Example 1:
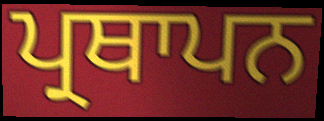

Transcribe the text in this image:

ਪ੍ਰਥਾਪਨ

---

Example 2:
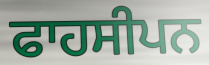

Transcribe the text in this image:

ਫਾਹਸੀਪਨ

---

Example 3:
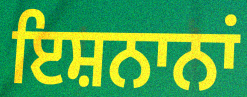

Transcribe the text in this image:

ਇਸ਼ਨਾਨਾਂ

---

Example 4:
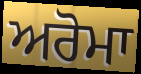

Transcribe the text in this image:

ਅਰੋਮਾ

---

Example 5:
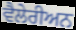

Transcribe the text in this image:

ਵੈਲੇਰੀਅਨ